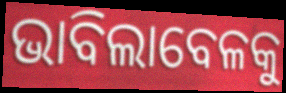
ଭାବିଲାବେଳକୁ